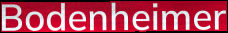
Bodenheimer